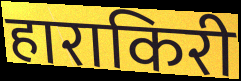
हाराकिरी